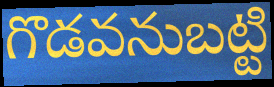
గొడవనుబట్టి